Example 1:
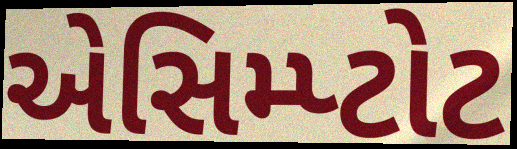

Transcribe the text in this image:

એસિમ્પ્ટોટ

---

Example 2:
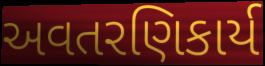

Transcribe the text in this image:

અવતરણિકાર્ય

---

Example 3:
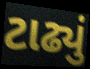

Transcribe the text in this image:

ટાઢ્યું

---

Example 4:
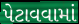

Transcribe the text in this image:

પેટાવવામાં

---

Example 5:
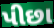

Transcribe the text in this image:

પીછા